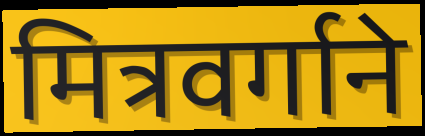
मित्रवर्गाने